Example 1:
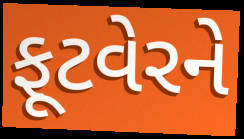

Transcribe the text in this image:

ફૂટવેરને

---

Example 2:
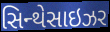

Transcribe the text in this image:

સિન્થેસાઇઝર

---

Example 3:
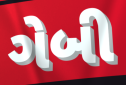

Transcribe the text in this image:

ગેબી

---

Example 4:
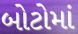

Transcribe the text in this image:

બોટોમાં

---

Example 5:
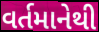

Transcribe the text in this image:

વર્તમાનેથી